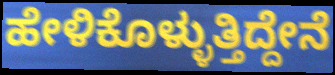
ಹೇಳಿಕೊಳ್ಳುತ್ತಿದ್ದೇನೆ